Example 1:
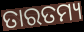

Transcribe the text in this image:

ତାରତମ୍ୟ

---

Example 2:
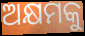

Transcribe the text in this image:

ଅକ୍ଷମକୁ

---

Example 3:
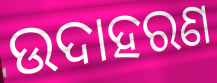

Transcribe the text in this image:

ଉଦାହରଣ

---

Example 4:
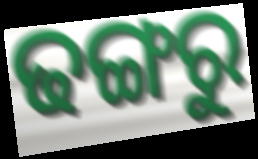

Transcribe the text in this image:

ଢଙ୍ଗରୁ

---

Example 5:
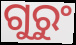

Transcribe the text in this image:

ଗୁରୁଂ